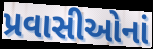
પ્રવાસીઓનાં